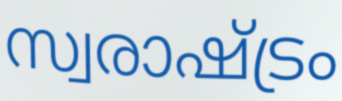
സ്വരാഷ്ട്രം